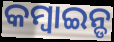
କମ୍ବାଇନ୍ଡ